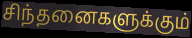
சிந்தனைகளுக்கும்